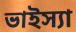
ভাইস্যা